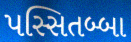
પસ્સિતબ્બા